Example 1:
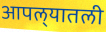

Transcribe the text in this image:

आपल्यातली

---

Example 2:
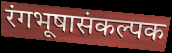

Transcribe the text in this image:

रंगभूषासंकल्पक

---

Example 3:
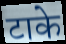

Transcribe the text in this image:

टाके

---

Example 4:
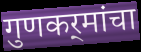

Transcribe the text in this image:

गुणकर्मांचा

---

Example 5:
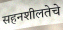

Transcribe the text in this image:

सहनशीलतेचे